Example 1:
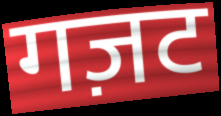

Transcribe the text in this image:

गज़ट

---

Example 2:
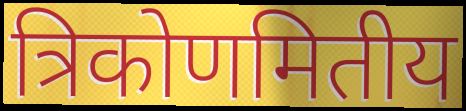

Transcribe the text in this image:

त्रिकोणमितीय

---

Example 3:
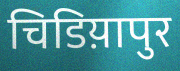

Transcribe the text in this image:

चिडिय़ापुर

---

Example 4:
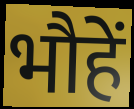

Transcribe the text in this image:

भौहें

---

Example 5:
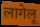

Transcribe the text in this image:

लागेलू